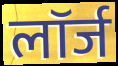
लॉर्ज